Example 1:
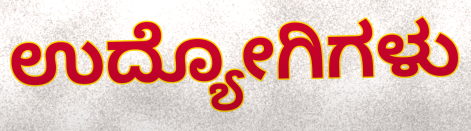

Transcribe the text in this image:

ಉದ್ಯೋಗಿಗಳು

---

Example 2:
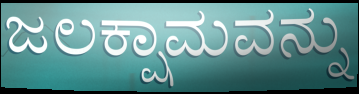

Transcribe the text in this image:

ಜಲಕ್ಷಾಮವನ್ನು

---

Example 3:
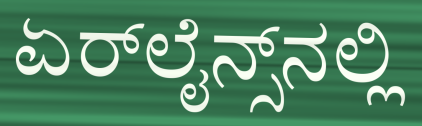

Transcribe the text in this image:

ಏರ್‌ಲೈನ್ಸ್‌ನಲ್ಲಿ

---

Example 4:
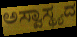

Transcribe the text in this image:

ಅಸ್ವಾಸ್ಥ್ಯದ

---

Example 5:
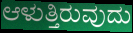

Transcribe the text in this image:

ಆಳುತ್ತಿರುವುದು